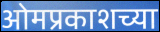
ओमप्रकाशच्या